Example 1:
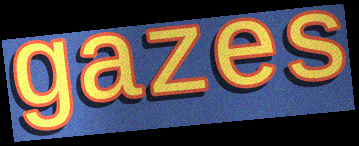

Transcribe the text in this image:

gazes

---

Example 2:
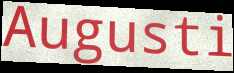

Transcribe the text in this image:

Augusti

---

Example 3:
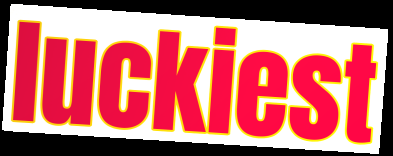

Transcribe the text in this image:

luckiest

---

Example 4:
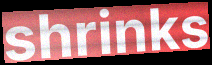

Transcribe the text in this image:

shrinks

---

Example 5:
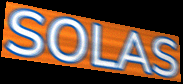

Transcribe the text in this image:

SOLAS